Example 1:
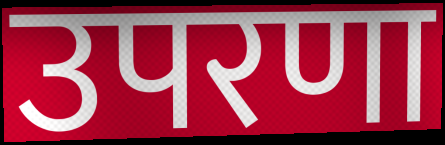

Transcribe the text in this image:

उपरणा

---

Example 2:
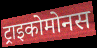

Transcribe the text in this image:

ट्राइकोमोनस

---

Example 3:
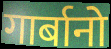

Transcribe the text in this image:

गार्बानो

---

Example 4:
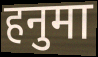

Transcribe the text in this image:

हनुमा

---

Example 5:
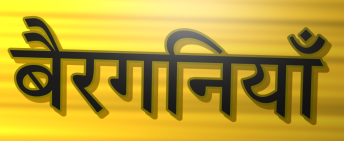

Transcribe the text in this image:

बैरगनियाँ